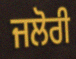
ਜਲੋਰੀ